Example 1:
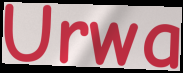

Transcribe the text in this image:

Urwa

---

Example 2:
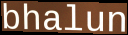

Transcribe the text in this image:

bhalun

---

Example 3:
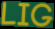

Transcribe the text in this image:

LIG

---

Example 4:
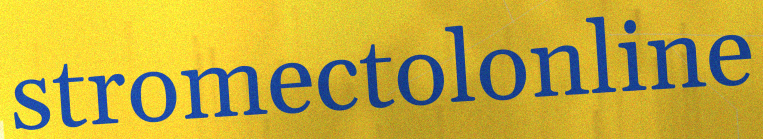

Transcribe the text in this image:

stromectolonline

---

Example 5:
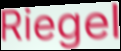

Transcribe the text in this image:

Riegel